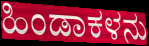
ಹಿಂಡಾಕಳನು